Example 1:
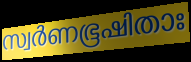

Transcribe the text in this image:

സ്വർണഭൂഷിതാഃ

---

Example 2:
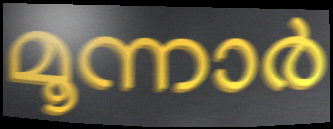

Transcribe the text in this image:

മൂന്നാർ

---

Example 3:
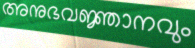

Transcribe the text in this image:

അനുഭവജ്ഞാനവും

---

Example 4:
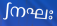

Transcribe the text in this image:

ഽനഘഃ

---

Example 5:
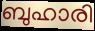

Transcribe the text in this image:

ബുഹാരി